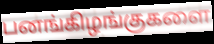
பனங்கிழங்குகளை